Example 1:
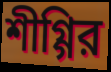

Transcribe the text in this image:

শীগ্গির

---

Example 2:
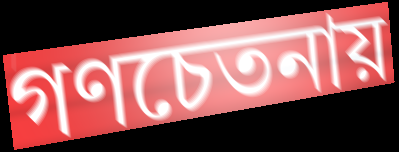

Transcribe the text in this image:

গণচেতনায়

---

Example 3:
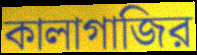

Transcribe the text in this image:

কালাগাজির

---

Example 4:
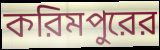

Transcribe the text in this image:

করিমপুরের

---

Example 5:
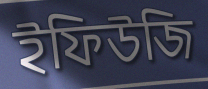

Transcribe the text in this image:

ইফিউজি